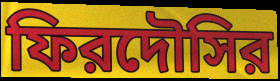
ফিরদৌসির